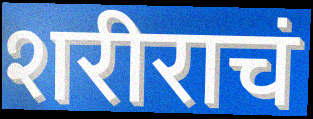
शरीराचं